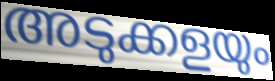
അടുക്കളയും